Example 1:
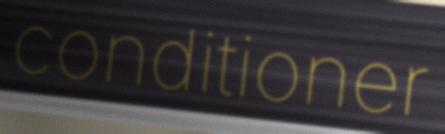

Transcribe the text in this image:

conditioner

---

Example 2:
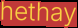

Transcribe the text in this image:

hethay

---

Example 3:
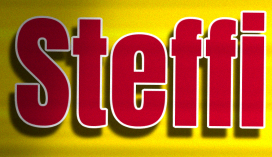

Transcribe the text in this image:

Steffi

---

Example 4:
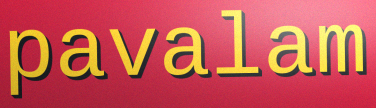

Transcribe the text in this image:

pavalam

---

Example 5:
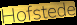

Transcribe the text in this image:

Hofstede